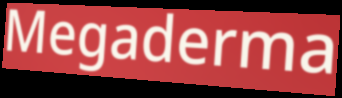
Megaderma